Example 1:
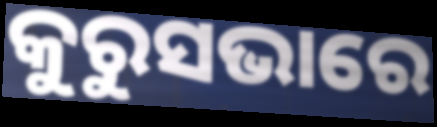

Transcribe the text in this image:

କୁରୁସଭାରେ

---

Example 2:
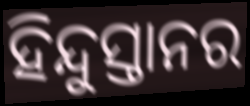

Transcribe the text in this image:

ହିନ୍ଦୁସ୍ତାନର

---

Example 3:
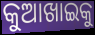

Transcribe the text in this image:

କୁଆଖାଇକୁ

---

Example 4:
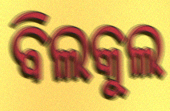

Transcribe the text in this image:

ବିଲକୁଲ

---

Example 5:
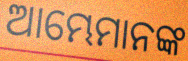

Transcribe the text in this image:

ଆମ୍ଭେମାନଙ୍କ